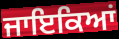
ਜਾਇਕਿਆਂ